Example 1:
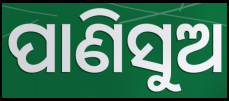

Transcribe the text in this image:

ପାଣିସୁଅ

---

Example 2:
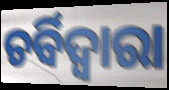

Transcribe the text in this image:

ଚର୍ବିଦ୍ଵାରା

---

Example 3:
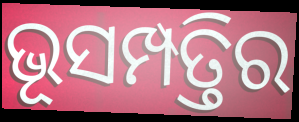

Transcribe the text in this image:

ଭୂସମ୍ପତ୍ତିର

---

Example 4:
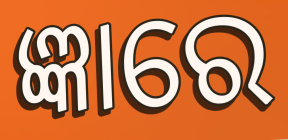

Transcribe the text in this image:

ଜ୍ଞାରେ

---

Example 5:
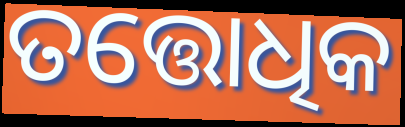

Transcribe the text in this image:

ତତ୍ତୋଧିକ